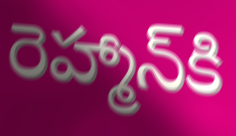
రెహ్మాన్‌కి